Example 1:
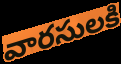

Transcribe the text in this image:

వారసులకి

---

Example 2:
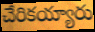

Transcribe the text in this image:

చేరికయ్యారు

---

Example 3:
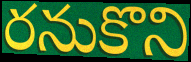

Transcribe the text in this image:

రనుకొని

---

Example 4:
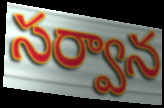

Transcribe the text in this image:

సర్వాన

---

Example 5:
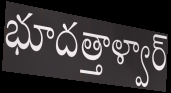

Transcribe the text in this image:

భూదత్తాళ్వార్